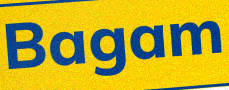
Bagam